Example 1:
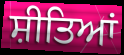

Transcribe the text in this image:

ਸ਼ੀਤਿਆਂ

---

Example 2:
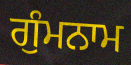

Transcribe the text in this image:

ਗੁੰਮਨਾਮ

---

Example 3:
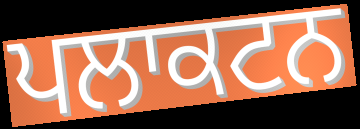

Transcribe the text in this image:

ਪਲਾਕਟਨ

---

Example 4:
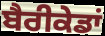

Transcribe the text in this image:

ਬੈਰੀਕੇਡਾਂ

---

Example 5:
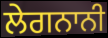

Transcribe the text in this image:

ਲੇਗਨਾਨੀ